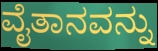
ವೈತಾನವನ್ನು